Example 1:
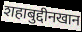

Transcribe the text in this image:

शहाबुद्दीनखान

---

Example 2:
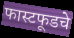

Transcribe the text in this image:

फास्टफूडचे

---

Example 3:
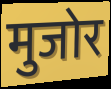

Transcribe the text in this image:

मुजोर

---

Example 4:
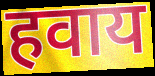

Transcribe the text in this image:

हवाय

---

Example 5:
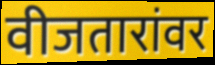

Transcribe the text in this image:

वीजतारांवर